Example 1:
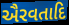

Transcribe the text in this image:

ઐરવતાદિ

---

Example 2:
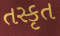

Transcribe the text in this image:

તસ્કૃત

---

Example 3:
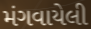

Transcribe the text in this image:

મંગવાયેલી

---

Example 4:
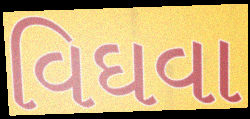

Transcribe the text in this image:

વિઘવા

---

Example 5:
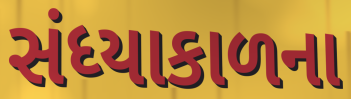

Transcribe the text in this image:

સંધ્યાકાળના